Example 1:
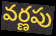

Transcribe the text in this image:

వర్ణపు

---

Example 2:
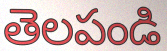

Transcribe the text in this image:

తెలపండి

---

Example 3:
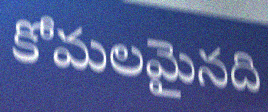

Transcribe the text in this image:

కోమలమైనది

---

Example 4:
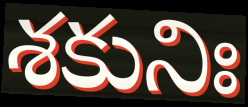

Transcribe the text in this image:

శకునిః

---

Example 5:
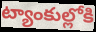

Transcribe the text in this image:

ట్యాంకుల్లోకి